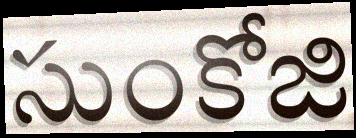
సుంకోజి